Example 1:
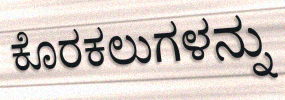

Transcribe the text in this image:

ಕೊರಕಲುಗಳನ್ನು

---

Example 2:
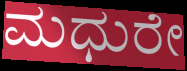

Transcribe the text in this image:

ಮಧುರೇ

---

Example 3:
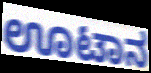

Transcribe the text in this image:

ಊಟಾನ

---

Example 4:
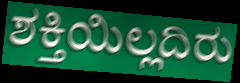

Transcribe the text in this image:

ಶಕ್ತಿಯಿಲ್ಲದಿರು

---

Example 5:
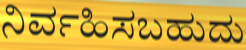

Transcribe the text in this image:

ನಿರ್ವಹಿಸಬಹುದು